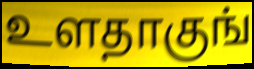
உளதாகுங்